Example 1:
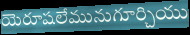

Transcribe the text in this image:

యెరూషలేమునుగూర్చియు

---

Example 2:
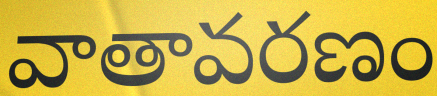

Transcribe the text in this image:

వాతావరణం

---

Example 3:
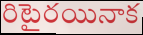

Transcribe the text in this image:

రిటైరయినాక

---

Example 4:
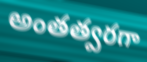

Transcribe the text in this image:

అంతత్వరగా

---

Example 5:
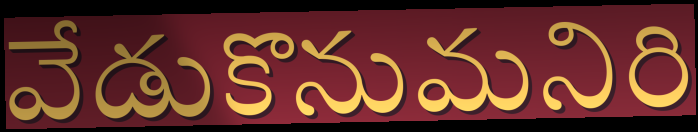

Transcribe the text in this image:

వేడుకొనుమనిరి